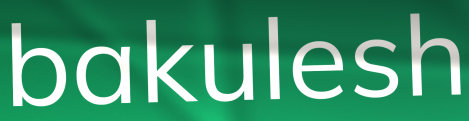
bakulesh